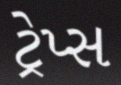
ટ્રેપ્સ